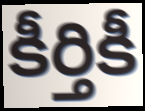
కీర్తికీ